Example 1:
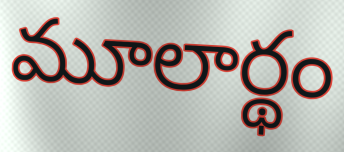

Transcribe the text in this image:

మూలార్థం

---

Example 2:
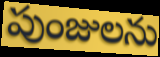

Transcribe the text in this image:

పుంజులను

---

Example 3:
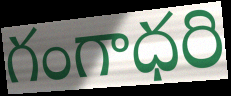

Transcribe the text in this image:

గంగాధరి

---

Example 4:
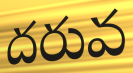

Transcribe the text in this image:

దరువ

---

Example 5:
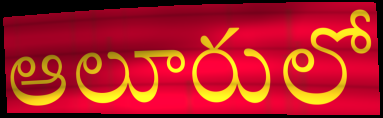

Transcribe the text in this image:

ఆలూరులో